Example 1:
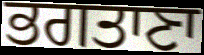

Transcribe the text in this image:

ਭਗਤਾਣਾ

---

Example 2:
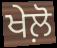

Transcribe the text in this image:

ਖੇਲ਼ੋ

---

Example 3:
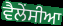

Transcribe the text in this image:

ਵੈਲੇਂਸੀਆ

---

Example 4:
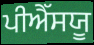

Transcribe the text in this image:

ਪੀਐੱਸਯੂ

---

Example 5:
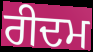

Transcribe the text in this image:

ਰੀਦਮ